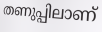
തണുപ്പിലാണ്